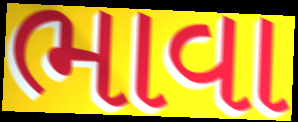
ભાવા